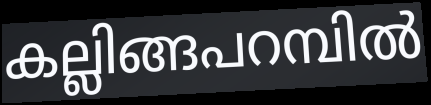
കല്ലിങ്ങപറമ്പിൽ